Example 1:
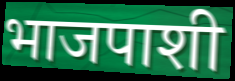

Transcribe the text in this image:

भाजपाशी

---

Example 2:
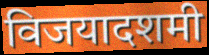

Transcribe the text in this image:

विजयादशमी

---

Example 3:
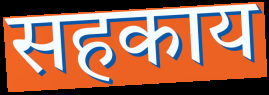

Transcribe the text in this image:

सहकाय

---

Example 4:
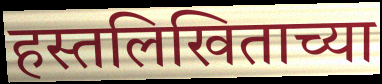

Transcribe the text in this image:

हस्तलिखिताच्या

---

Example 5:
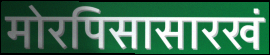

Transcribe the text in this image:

मोरपिसासारखं